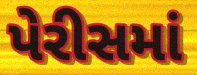
પેરીસમાં